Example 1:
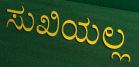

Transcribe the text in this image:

ಸುಖಿಯಲ್ಲ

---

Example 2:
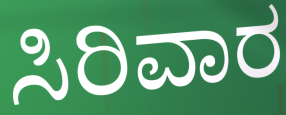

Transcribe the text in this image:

ಸಿರಿವಾರ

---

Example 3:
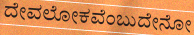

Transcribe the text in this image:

ದೇವಲೋಕವೆಂಬುದೇನೋ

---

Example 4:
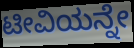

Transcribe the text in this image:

ಟೀವಿಯನ್ನೇ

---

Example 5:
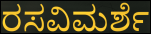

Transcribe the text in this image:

ರಸವಿಮರ್ಶೆ